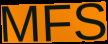
MFS